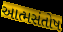
આત્મસંતોષ